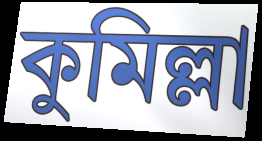
কুমিল্লা